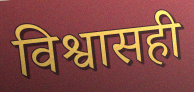
विश्वासही